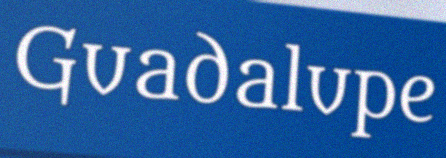
Guadalupe